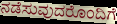
ನಡೆಸುವುದರೊಂದಿಗೆ